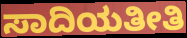
ಸಾದಿಯತೀತಿ